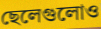
ছেলেগুলোও